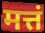
मत्तं